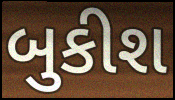
બુકીશ